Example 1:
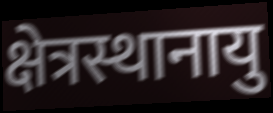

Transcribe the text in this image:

क्षेत्रस्थानायु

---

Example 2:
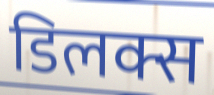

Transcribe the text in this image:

डिलक्स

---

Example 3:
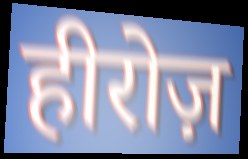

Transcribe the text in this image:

हीरोज़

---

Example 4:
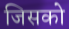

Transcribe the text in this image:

जिसको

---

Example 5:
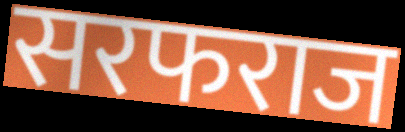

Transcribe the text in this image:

सरफराज